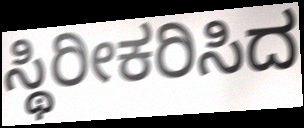
ಸ್ಥಿರೀಕರಿಸಿದ